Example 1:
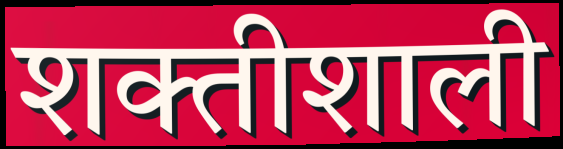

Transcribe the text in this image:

शक्‍तीशाली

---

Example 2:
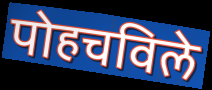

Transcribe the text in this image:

पोहचविले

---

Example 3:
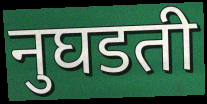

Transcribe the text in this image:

नुघडती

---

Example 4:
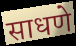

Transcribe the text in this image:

साधणे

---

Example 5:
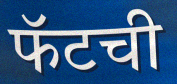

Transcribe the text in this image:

फॅटची